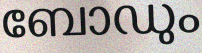
ബോഡും